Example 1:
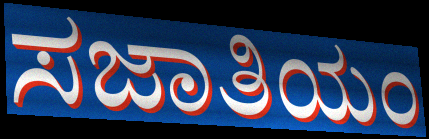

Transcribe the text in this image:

ಸಜಾತಿಯಂ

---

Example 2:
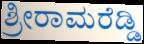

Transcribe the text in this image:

ಶ್ರೀರಾಮರೆಡ್ಡಿ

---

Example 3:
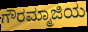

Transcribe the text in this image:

ಗೌರಮ್ಮಾಜಿಯ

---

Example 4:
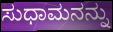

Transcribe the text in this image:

ಸುಧಾಮನನ್ನು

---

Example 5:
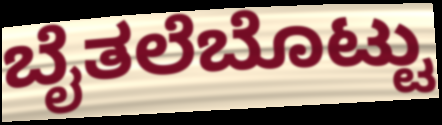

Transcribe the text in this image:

ಬೈತಲೆಬೊಟ್ಟು